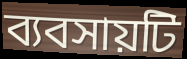
ব্যবসায়টি